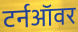
टर्नऑवर